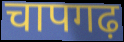
चापगढ़